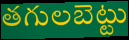
తగులబెట్టు